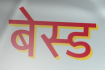
बेस्ड